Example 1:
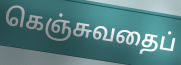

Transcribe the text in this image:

கெஞ்சுவதைப்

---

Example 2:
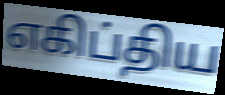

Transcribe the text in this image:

எகிப்திய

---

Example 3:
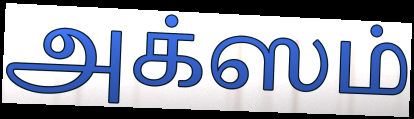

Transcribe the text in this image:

அக்ஸம்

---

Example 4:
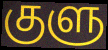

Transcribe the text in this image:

குளு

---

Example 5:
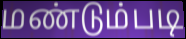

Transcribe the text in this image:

மண்டும்படி